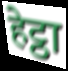
हेट्ठा